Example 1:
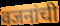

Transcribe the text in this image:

वजनांची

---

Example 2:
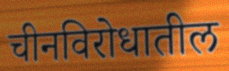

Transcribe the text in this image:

चीनविरोधातील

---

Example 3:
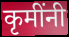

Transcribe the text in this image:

कृमींनी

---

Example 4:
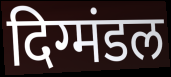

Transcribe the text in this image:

दिग्मंडल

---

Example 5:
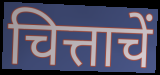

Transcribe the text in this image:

चित्ताचें